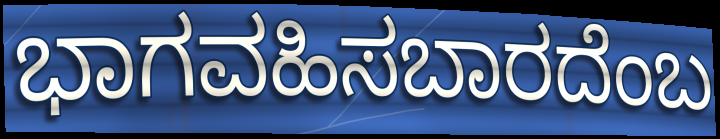
ಭಾಗವಹಿಸಬಾರದೆಂಬ